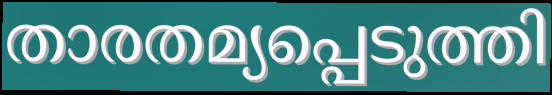
താരതമ്യപ്പെടുത്തി